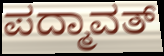
ಪದ್ಮಾವತ್